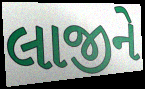
લાજીને